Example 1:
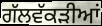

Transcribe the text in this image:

ਗੱਲਵੱਕੜੀਆਂ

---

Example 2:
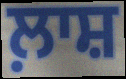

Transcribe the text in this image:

ਲ਼ਾਸ਼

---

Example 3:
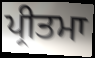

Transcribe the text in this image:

ਪ੍ਰੀਤਮਾ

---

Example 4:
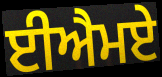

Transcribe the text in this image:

ਈਐਮਏ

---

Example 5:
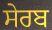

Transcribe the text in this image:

ਸੇਰਬ